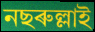
নছৰুল্লাই